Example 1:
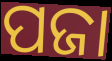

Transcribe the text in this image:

ପଜା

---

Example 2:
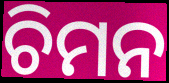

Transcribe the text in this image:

ଚିମନ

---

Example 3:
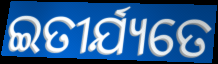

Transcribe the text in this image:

ଇତୀର୍ଯ୍ୟତେ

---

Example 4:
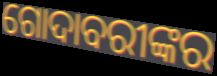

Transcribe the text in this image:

ଗୋଦାବରୀଙ୍କର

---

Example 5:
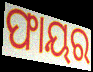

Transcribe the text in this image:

ଫାୟର